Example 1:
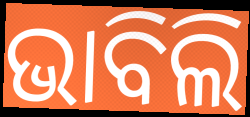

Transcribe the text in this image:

ଭାବିଲି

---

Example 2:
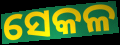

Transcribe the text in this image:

ସେକଳ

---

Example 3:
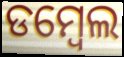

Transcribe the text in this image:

ଡମ୍ୱେଲ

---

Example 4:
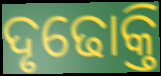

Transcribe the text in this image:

ଦୃଢୋକ୍ତି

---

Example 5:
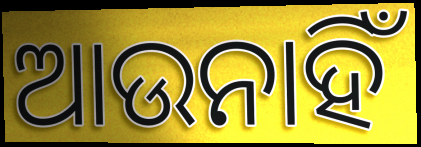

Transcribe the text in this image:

ଆଉନାହିଁ